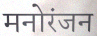
मनोरंजन